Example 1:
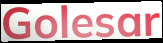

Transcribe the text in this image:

Golesar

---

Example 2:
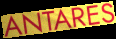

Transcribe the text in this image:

ANTARES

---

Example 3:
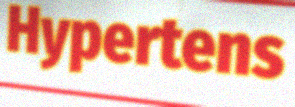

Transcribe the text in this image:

Hypertens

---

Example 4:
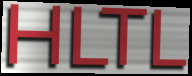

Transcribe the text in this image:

HLTL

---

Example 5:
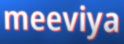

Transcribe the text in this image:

meeviya